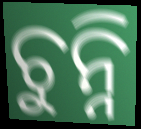
ଚୁନ୍ନି